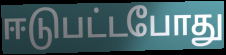
ஈடுபட்டபோது